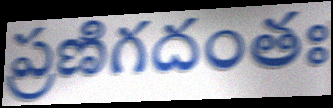
ప్రణిగదంతః